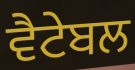
ਵੈਟੇਬਲ